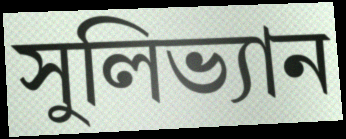
সুলিভ্যান